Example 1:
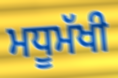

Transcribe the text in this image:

ਮਧੂਮੱਖੀ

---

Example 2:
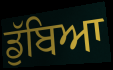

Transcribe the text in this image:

ਡੁੱਬਿਆ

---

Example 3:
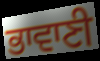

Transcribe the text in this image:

ਭਾਵਾਣੀ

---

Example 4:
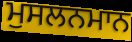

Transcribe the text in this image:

ਮੁਸਲਨਮਾਨ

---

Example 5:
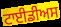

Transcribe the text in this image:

ਟਾਈਡੀਅਸ